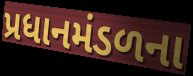
પ્રધાનમંડળના